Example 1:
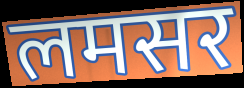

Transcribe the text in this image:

लमसर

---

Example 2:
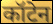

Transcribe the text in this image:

कॉटेन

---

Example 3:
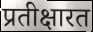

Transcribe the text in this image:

प्रतीक्षारत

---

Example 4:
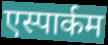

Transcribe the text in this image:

एस्पार्कम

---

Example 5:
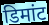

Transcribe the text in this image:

डिमांट